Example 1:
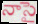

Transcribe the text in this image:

నాసై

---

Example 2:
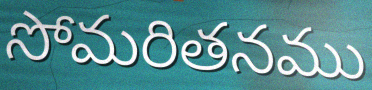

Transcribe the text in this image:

సోమరితనము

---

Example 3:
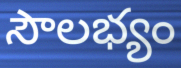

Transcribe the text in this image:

సౌలభ్యం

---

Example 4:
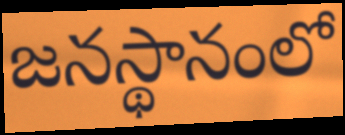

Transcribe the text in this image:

జనస్థానంలో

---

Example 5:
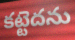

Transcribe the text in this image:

కట్టెదను